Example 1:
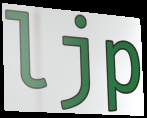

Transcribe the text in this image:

ljp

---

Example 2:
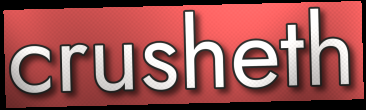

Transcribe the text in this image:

crusheth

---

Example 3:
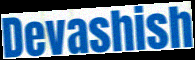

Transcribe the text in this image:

Devashish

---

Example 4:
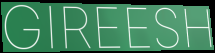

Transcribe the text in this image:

GIREESH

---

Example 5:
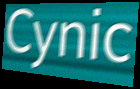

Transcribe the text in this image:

Cynic